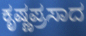
ಕೃಷ್ಣಪ್ರಸಾದ